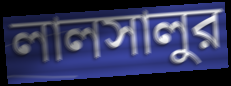
লালসালুর